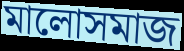
মালোসমাজ